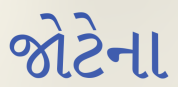
જોટેના